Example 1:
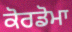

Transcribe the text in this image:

ਕੋਰਡੋਮਾ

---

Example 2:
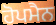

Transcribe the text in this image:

ਹੋਪਮੈਨ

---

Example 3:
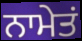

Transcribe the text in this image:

ਨਾਮੇਤਂ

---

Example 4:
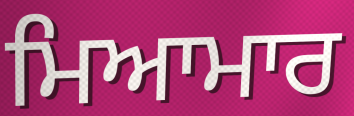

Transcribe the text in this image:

ਮਿਆਮਾਰ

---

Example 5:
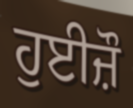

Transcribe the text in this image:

ਹੁਈਜ਼ੌ